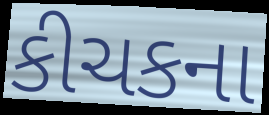
કીચકના